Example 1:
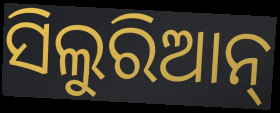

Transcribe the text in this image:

ସିଲୁରିଆନ୍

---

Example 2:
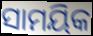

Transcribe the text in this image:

ସାମୟିକ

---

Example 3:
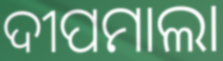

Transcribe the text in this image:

ଦୀପମାଲା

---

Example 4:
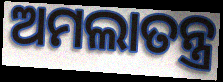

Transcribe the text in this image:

ଅମଲାତନ୍ତ୍ର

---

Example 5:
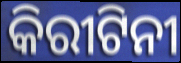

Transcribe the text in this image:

କିରୀଟିନୀ